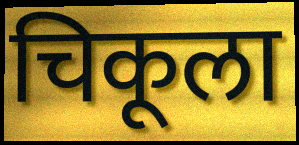
चिकूला